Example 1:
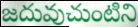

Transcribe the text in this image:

జదువుచుంటిని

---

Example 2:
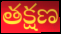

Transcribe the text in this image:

తక్షణ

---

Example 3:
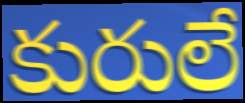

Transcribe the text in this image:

కురులే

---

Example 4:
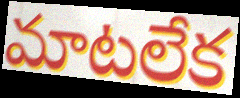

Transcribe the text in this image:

మాటలేక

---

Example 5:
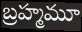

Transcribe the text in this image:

బ్రహ్మమూ